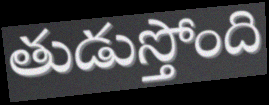
తుడుస్తోంది